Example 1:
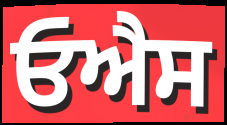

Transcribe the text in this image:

ਓਐਸ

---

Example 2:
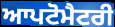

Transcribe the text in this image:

ਆਪਟੋਮੈਟਰੀ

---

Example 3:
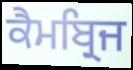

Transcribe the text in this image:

ਕੈਮਬ੍ਰਿਜ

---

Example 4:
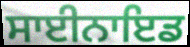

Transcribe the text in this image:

ਸਾਈਨਾਇਡ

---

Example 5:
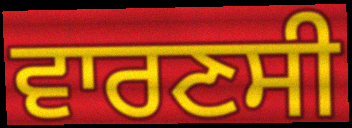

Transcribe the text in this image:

ਵਾਰਣਸੀ